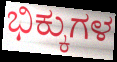
ಭಿಕ್ಕುಗಳ